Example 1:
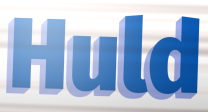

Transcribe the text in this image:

Huld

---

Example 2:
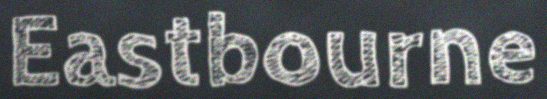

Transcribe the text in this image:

Eastbourne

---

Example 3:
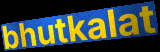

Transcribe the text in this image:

bhutkalat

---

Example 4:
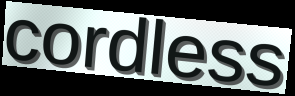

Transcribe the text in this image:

cordless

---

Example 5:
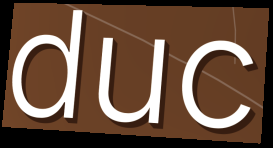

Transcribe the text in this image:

duc